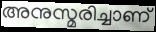
അനുസ്മരിച്ചാണ്